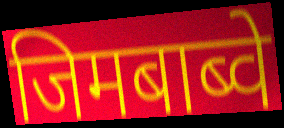
जिमबाब्वे